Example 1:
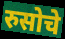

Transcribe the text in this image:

रुसोचे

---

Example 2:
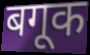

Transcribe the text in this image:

बगूक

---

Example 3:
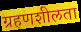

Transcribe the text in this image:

ग्रहणशीलता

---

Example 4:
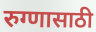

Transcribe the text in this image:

रुग्णासाठी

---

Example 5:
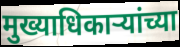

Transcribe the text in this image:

मुख्याधिकाऱ्यांच्या